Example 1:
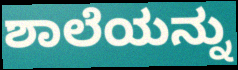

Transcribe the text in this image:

ಶಾಲೆಯನ್ನು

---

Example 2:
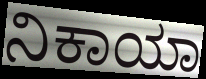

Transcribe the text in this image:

ನಿಕಾಯಾ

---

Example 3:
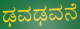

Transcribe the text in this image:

ಢವಢವನೆ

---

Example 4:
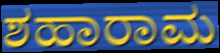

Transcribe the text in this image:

ಶಹಾರಾಮ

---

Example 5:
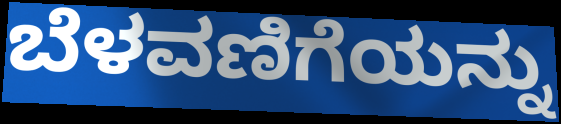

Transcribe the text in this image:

ಬೆಳವಣಿಗೆಯನ್ನು